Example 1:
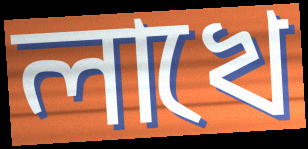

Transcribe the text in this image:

লাখে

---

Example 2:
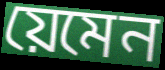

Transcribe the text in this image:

য়েমেন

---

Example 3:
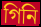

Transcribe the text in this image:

গিনি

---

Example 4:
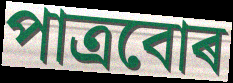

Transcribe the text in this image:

পাত্ৰবোৰ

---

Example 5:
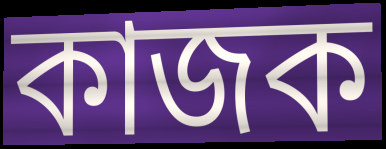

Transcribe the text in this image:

কাজক